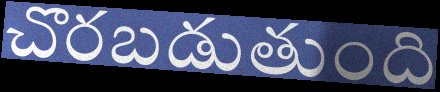
చొరబడుతుంది